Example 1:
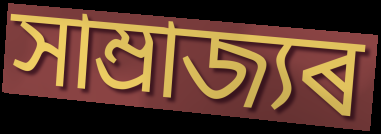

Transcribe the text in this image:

সাম্ৰাজ্যৰ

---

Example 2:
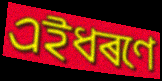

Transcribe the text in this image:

এইধৰণে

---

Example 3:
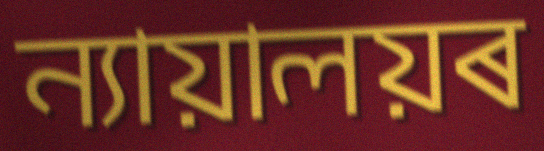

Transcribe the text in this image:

ন্যায়ালয়ৰ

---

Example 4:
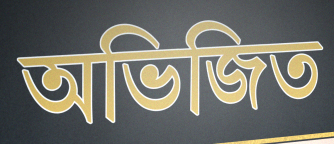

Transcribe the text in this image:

অভিজিত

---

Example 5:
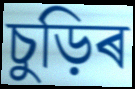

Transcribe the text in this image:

চুড়িৰ